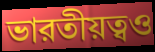
ভারতীয়ত্বও